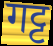
गट्ट